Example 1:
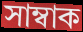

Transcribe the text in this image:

সাম্বাক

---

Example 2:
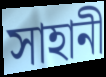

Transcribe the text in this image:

সাহানী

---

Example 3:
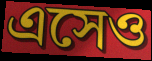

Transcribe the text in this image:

এসেও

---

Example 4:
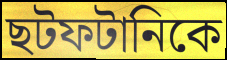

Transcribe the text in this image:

ছটফটানিকে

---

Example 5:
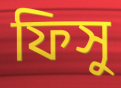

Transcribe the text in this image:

ফিসু